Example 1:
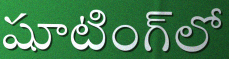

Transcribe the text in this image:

షూటింగ్‌లో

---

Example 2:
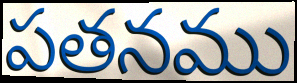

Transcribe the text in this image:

పతనము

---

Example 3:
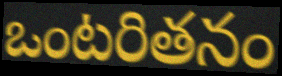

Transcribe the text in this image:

ఒంటరితనం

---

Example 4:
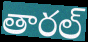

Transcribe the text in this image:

తారల్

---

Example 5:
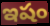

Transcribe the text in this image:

ఇషం